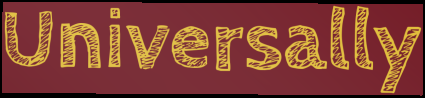
Universally